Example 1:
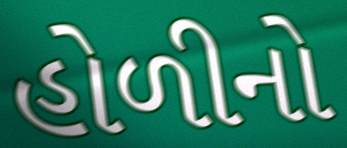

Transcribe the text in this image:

હોળીનો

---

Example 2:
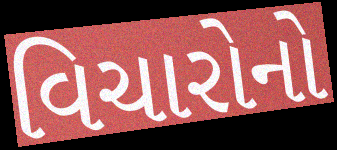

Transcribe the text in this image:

વિચારોનો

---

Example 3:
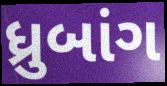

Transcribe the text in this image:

ધ્રુબાંગ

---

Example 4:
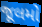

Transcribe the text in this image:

જૂલમો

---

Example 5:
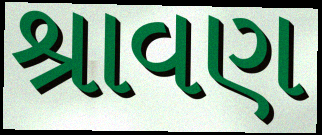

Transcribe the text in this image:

શ્રાવણ